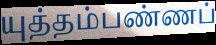
யுத்தம்பண்ணப்